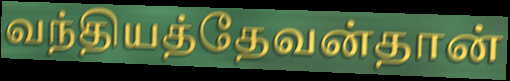
வந்தியத்தேவன்தான்